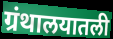
ग्रंथालयातली